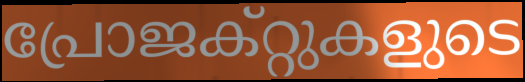
പ്രോജക്റ്റുകളുടെ